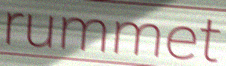
rummet